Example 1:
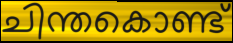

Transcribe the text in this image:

ചിന്തകൊണ്ട്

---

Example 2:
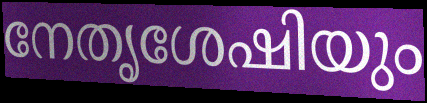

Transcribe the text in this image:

നേതൃശേഷിയും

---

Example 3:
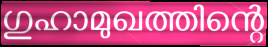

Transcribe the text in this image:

ഗുഹാമുഖത്തിന്റെ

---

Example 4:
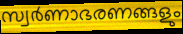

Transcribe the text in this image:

സ്വർണാഭരണങ്ങളും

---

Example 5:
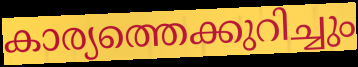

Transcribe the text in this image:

കാര്യത്തെക്കുറിച്ചും